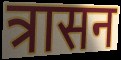
त्रासन